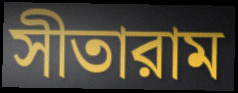
সীতারাম